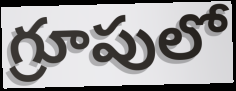
గ్రూపులో